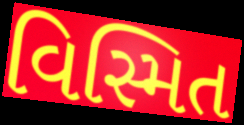
વિસ્મિત